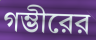
গম্ভীরের